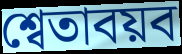
শ্বেতাবয়ব